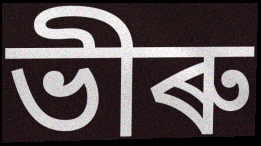
ভীৰু